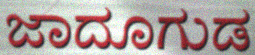
ಜಾದೂಗುಡ